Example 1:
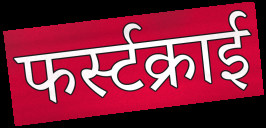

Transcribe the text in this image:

फर्स्टक्राई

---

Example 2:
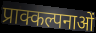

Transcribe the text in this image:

प्राक्कल्पनाओं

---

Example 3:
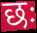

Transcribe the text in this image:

छः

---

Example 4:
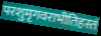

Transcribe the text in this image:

परशुमृगवराभीतिहस्तं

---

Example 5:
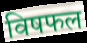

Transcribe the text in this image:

विषफल